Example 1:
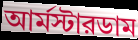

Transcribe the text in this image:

আর্মস্টারডাম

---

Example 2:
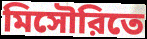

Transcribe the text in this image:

মিসৌরিতে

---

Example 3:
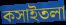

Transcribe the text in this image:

কসাইতলা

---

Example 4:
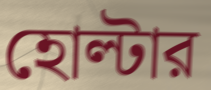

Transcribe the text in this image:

হোল্টার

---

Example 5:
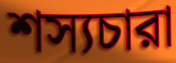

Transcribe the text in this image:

শস্যচারা